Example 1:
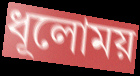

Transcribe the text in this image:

ধূলোময়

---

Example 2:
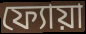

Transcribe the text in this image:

ফ্যোয়া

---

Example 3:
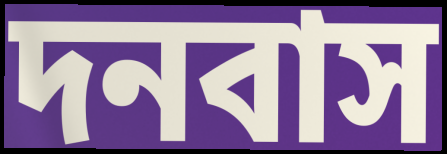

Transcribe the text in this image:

দনবাস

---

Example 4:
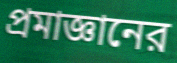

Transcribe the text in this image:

প্রমাজ্ঞানের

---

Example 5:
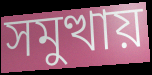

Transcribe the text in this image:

সমুত্থায়